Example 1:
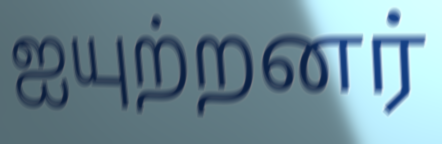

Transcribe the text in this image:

ஐயுற்றனர்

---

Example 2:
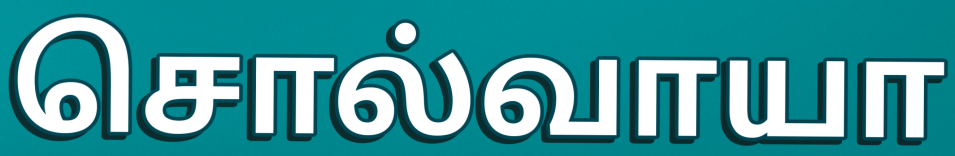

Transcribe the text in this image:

சொல்வாயா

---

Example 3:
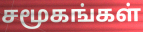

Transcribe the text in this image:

சமூகங்கள்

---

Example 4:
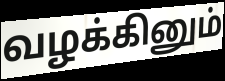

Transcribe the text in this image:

வழக்கினும்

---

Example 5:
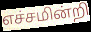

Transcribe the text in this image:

எச்சமின்றி